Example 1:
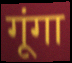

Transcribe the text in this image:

गूंगा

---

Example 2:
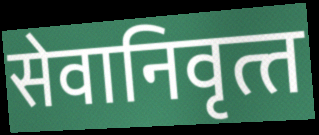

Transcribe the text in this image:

सेवानिवृत्‍त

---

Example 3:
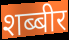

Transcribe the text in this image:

शब्बीर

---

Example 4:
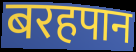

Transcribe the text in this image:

बरहपान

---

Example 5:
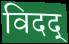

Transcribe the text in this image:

विदद्